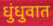
धुंधुवात